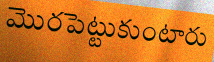
మొరపెట్టుకుంటారు